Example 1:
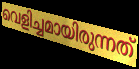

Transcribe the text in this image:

വെളിച്ചമായിരുന്നത്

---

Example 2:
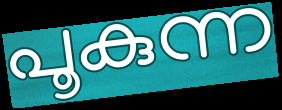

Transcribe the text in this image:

പൂകുന്ന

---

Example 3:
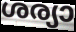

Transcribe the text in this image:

ശര്യാ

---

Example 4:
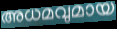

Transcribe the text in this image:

അധമവുമായ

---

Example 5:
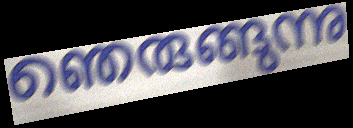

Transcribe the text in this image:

ഞെരുങ്ങുന്നു